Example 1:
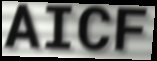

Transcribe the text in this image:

AICF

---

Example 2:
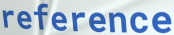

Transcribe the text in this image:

reference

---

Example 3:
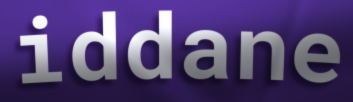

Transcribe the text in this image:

iddane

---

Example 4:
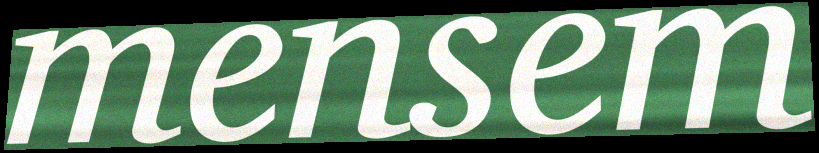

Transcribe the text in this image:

mensem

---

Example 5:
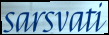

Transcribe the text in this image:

sarsvati